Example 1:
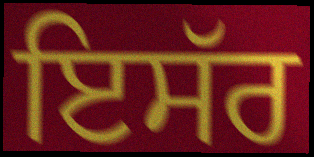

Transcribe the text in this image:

ਇਸੱਰ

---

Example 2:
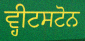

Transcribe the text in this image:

ਵ੍ਹੀਟਸਟੋਨ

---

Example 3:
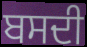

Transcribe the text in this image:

ਬਸਦੀ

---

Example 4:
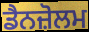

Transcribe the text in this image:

ਡੈਨਜ਼ੋਲਮ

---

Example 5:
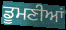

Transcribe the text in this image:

ਡੂਮਣੀਆਂ